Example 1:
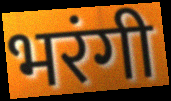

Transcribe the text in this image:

भरंगी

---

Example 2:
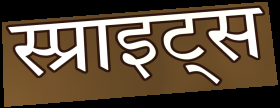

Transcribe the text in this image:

स्प्राइट्स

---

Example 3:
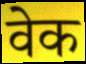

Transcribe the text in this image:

वेक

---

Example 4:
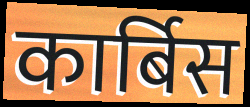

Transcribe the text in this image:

कार्बिस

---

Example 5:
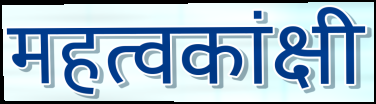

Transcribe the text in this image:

महत्वकांक्षी